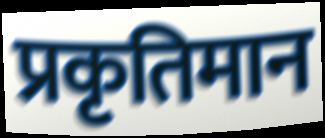
प्रकृतिमान